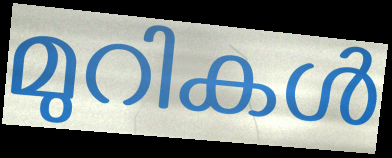
മുറികൾ